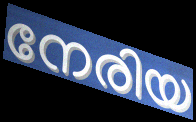
നേരിയ